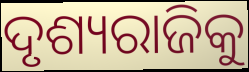
ଦୃଶ୍ୟରାଜିକୁ